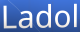
Ladol